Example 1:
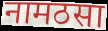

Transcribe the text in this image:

नामठसा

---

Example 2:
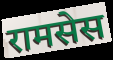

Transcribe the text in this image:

रामसेस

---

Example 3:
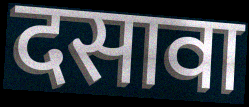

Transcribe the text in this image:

दसावा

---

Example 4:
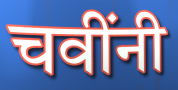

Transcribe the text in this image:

चवींनी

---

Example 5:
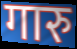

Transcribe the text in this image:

गारु